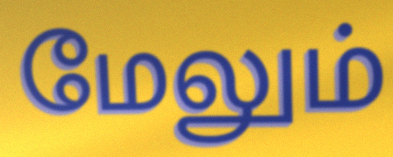
மேலும்